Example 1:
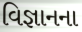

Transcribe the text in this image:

વિજ્ઞાનના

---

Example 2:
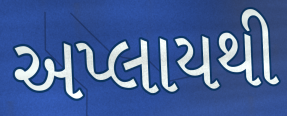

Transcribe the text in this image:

અપ્લાયથી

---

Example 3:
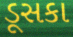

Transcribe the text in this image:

ડૂસકા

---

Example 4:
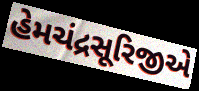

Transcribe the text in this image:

હેમચંદ્રસૂરિજીએ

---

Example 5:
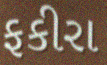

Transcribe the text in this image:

ફકીરા